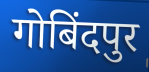
गोबिंदपुर